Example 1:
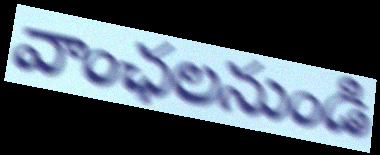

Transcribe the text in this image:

వాంఛలనుండి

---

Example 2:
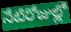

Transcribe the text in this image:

నేటిరోజుల్లో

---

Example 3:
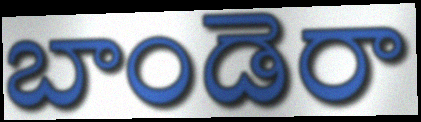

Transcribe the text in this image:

బాండెరా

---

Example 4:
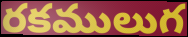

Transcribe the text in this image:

రకములుగ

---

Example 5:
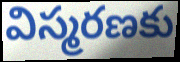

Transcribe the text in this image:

విస్మరణకు